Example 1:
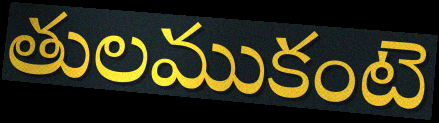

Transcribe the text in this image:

తులముకంటె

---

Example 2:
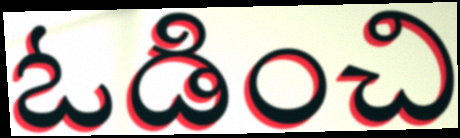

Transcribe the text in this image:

ఓడించి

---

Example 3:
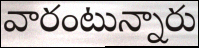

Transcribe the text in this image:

వారంటున్నారు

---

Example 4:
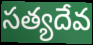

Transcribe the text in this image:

సత్యదేవ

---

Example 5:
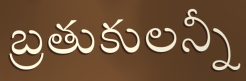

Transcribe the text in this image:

బ్రతుకులన్నీ